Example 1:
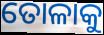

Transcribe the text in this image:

ତୋଳାକୁ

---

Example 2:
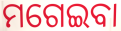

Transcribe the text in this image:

ମଗେଇବା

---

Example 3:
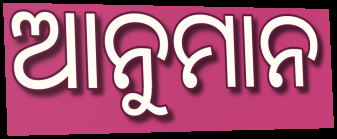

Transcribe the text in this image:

ଆନୁମାନ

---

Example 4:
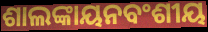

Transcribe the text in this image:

ଶାଲଙ୍କାୟନବଂଶୀୟ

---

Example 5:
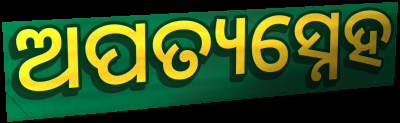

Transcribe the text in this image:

ଅପତ୍ୟସ୍ନେହ